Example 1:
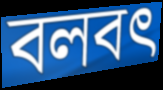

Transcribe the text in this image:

বলবৎ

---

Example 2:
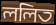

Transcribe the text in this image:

ললিত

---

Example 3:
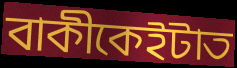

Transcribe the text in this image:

বাকীকেইটাত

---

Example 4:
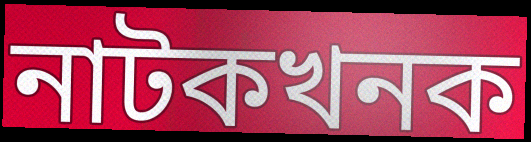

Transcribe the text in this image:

নাটকখনক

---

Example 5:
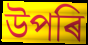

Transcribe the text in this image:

উপৰি